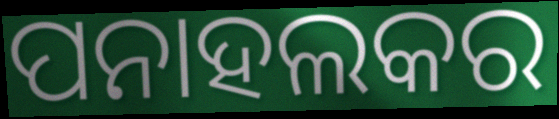
ପନାହଲକର